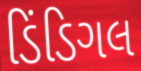
ડિંડિગલ